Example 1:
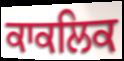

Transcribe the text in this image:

ਕਾਕਲਿਕ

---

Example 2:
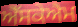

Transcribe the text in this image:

ਐੱਸਕੇਐਮ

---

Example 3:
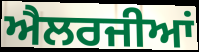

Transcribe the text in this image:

ਐਲਰਜੀਆਂ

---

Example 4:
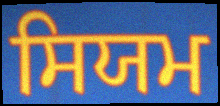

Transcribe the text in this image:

ਸਿਯਮ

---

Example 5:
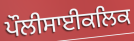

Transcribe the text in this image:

ਪੌਲੀਸਾਈਕਲਿਕ